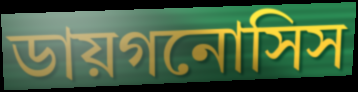
ডায়গনোসিস